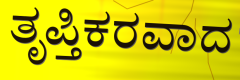
ತೃಪ್ತಿಕರವಾದ